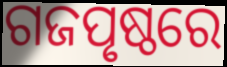
ଗଜପୃଷ୍ଠରେ